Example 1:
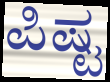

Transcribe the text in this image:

ಪಿಷ್ಟ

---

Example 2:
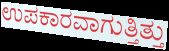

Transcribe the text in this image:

ಉಪಕಾರವಾಗುತ್ತಿತ್ತು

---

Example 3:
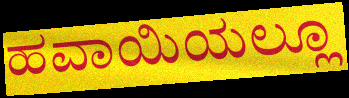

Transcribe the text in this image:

ಹವಾಯಿಯಲ್ಲೂ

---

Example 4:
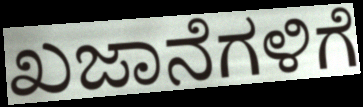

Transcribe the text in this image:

ಖಜಾನೆಗಳಿಗೆ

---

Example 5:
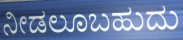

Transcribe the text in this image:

ನೀಡಲೂಬಹುದು